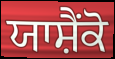
ਯਾਸ਼ੈਂਕੋ